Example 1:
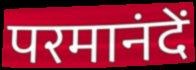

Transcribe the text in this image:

परमानंदें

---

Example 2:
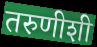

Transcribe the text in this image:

तरुणीशी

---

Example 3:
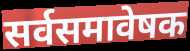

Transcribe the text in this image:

सर्वसमावेषक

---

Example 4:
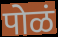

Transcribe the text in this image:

पोळं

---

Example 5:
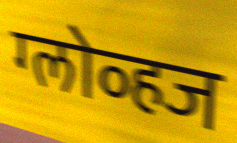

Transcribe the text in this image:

ग्लोव्हज